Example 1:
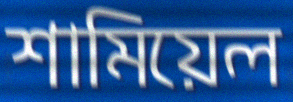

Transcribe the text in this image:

শামিয়েল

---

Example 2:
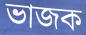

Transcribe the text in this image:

ভাজক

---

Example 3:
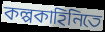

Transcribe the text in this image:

কল্পকাহিনিতে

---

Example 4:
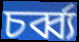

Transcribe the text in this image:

চর্ব্ব্য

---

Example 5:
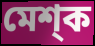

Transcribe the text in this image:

মেশ্ক